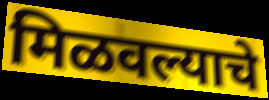
मिळवल्याचे